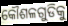
କୌଶଳଗୁଡିକୁ